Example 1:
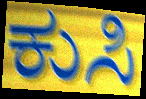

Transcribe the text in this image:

ಕುಸಿ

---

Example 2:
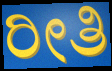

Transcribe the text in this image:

ರೀತಿ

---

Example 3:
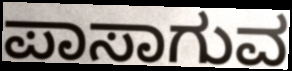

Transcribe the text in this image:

ಪಾಸಾಗುವ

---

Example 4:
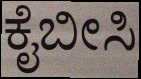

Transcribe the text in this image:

ಕೈಬೀಸಿ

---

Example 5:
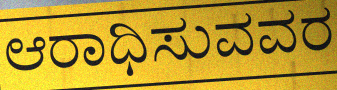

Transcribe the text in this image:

ಆರಾಧಿಸುವವರ